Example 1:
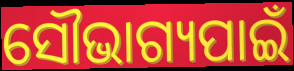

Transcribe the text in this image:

ସୌଭାଗ୍ୟପାଇଁ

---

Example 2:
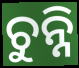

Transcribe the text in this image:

ଚୁନ୍ନି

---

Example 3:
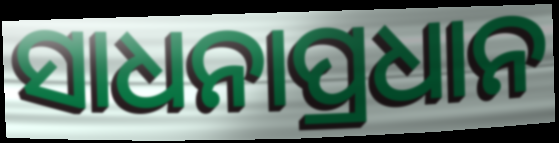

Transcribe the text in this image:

ସାଧନାପ୍ରଧାନ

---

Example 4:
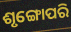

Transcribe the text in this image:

ଶୃଙ୍ଗୋପରି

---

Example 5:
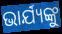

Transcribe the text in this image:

ଭାର୍ଯ୍ୟଙ୍କୁ